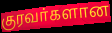
குரவர்களான